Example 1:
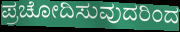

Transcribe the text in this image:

ಪ್ರಚೋದಿಸುವುದರಿಂದ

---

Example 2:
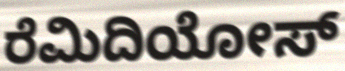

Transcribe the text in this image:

ರೆಮಿದಿಯೋಸ್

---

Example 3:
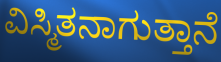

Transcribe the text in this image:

ವಿಸ್ಮಿತನಾಗುತ್ತಾನೆ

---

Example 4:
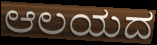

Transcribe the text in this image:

ಆಲಯದ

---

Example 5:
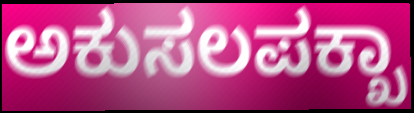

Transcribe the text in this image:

ಅಕುಸಲಪಕ್ಖಾ